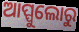
ଆପ୍ପୁଲୋରୁ